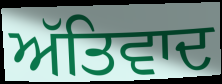
ਅੱਤਿਵਾਦ